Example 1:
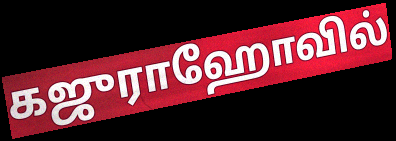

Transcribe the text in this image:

கஜுராஹோவில்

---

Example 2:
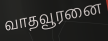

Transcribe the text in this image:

வாதவூரனை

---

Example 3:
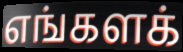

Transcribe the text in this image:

எங்களக்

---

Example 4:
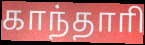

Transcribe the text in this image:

காந்தாரி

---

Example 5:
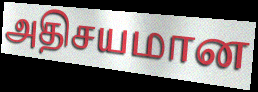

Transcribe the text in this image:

அதிசயமான